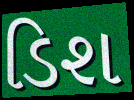
ડિશ